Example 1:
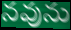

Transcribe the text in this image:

నవును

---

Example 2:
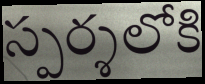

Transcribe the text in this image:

స్పర్శలోకి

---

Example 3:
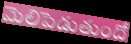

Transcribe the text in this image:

మెలిపెడుతుందో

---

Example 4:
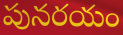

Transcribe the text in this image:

పునరయం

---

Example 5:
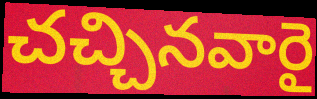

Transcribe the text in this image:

చచ్చినవారై